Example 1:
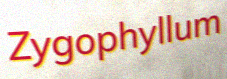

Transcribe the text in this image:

Zygophyllum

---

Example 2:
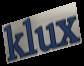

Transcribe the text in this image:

klux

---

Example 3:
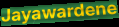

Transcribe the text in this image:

Jayawardene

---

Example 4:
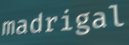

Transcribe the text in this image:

madrigal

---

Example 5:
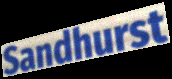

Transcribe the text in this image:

Sandhurst